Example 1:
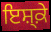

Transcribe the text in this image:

ਇਸ਼੍ਕ਼ੇ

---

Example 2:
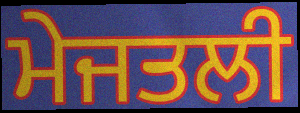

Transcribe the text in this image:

ਮੇਜਤਲੀ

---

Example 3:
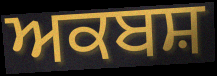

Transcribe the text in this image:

ਅਕਬਸ਼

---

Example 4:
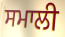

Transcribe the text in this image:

ਸਮਾਲੀ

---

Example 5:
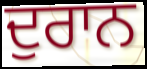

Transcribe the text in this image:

ਦੁਰਾਨ